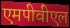
एमपीवीएल